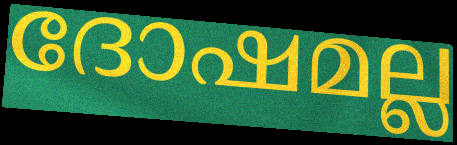
ദോഷമല്ല